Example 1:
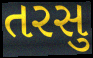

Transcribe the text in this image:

તરસુ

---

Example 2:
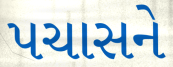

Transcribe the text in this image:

પચાસને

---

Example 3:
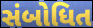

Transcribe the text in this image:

સંબોધિત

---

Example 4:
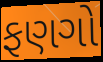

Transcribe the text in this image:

ફણગો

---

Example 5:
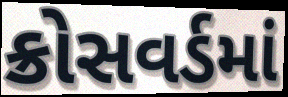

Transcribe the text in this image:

ક્રોસવર્ડમાં